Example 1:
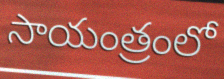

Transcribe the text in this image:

సాయంత్రంలో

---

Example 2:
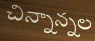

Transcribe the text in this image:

చిన్నాన్నల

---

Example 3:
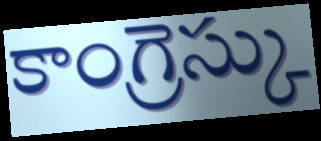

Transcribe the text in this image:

కాంగ్రెస్కు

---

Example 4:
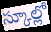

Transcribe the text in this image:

స్కూల్లో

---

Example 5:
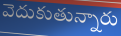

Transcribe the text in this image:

వెదుకుతున్నారు